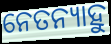
ନେତନ୍ୟାହୁ